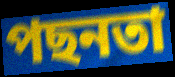
পছনতা